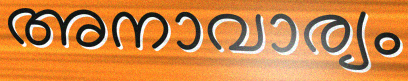
അനാവാര്യം